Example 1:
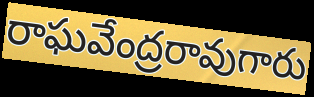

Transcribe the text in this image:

రాఘవేంద్రరావుగారు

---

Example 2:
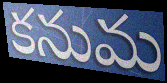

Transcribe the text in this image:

కనుమ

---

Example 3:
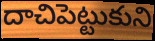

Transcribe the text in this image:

దాచిపెట్టుకుని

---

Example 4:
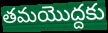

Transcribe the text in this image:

తమయొద్దకు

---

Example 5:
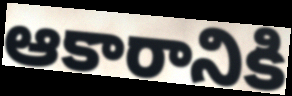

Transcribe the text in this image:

ఆకారానికి